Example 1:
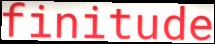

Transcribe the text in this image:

finitude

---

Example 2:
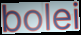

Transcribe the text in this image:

bolei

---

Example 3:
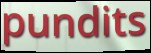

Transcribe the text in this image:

pundits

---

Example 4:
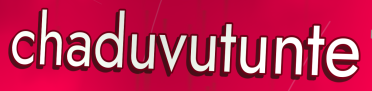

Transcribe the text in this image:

chaduvutunte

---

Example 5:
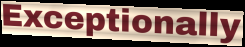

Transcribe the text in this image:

Exceptionally